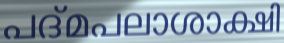
പദ്മപലാശാക്ഷി